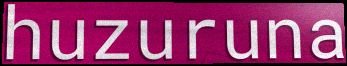
huzuruna